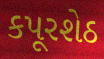
કપૂરશેઠ